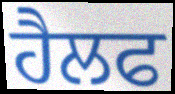
ਹੈਲਫ